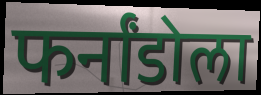
फर्नांडोला